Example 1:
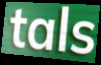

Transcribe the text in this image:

tals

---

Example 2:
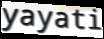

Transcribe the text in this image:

yayati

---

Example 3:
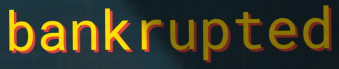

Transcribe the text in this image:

bankrupted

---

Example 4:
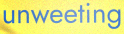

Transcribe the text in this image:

unweeting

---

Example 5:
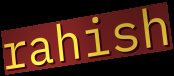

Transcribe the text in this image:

rahish